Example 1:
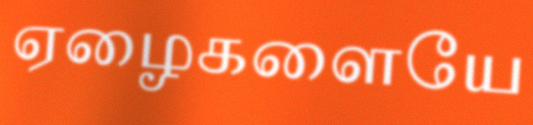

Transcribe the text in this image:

ஏழைகளையே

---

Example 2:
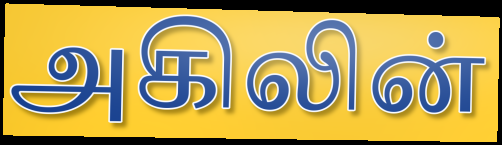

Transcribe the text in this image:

அகிலின்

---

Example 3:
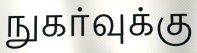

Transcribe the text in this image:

நுகர்வுக்கு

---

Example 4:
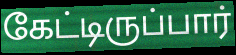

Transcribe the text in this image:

கேட்டிருப்பார்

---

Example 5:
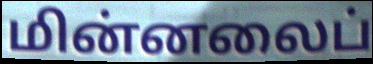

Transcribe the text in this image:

மின்னலைப்